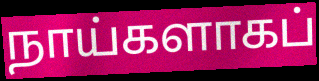
நாய்களாகப்